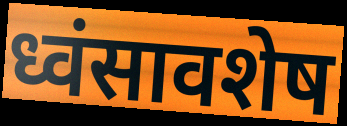
ध्वंसावशेष